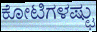
ಕೋಟಿಗಳಷ್ಟು